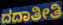
ದದಾತೀತಿ